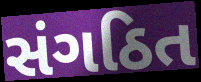
સંગઠિત